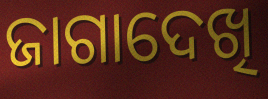
ଜାଗାଦେଖି